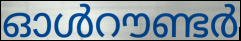
ഓൾറൗണ്ടർ